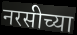
नरसीच्या